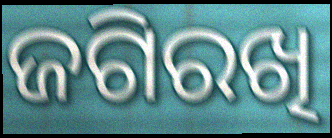
ଜଗିରଖି